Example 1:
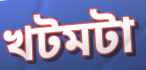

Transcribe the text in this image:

খটমটা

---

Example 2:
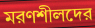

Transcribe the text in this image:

মরণশীলদের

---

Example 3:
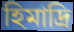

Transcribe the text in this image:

হিমাদ্রি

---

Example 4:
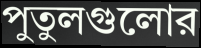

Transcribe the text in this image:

পুতুলগুলোর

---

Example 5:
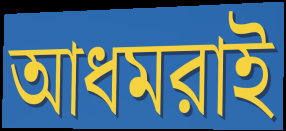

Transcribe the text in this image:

আধমরাই